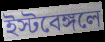
ইস্টবেঙ্গলে